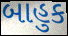
બાહુક